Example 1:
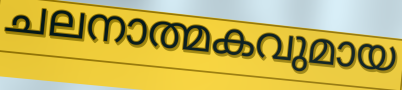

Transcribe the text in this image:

ചലനാത്മകവുമായ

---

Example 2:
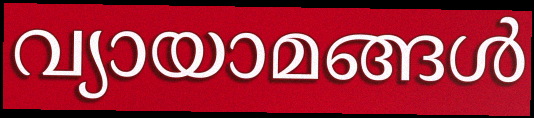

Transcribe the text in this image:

വ്യായാമങ്ങൾ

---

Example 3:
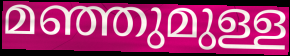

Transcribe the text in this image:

മഞ്ഞുമുള്ള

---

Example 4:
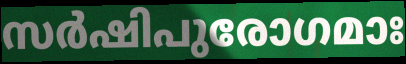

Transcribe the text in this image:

സർഷിപുരോഗമാഃ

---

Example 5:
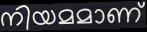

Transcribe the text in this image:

നിയമമാണ്